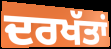
ਦਰਖੱਤਾਂ